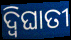
ଦ୍ବିଘାତୀ